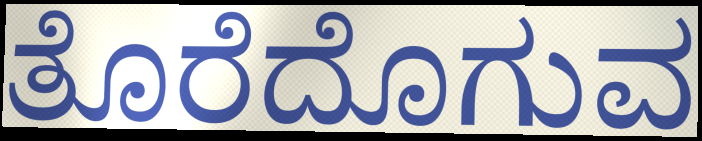
ತೊರೆದೊಗುವ